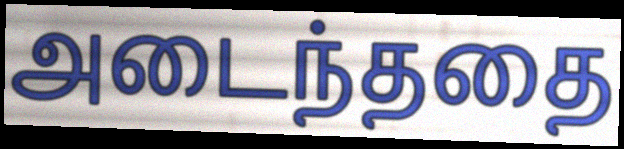
அடைந்ததை